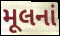
મૂલનાં